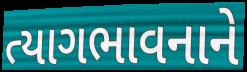
ત્યાગભાવનાને